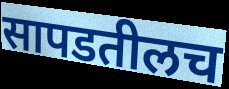
सापडतीलच